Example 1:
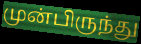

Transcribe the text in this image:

முன்பிருந்து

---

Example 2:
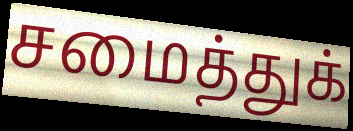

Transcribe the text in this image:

சமைத்துக்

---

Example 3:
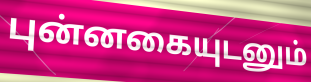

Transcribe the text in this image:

புன்னகையுடனும்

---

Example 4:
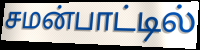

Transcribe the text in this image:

சமன்பாட்டில்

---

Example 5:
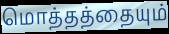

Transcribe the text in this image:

மொத்தத்தையும்